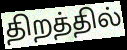
திறத்தில்